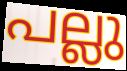
പല്ലു